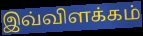
இவ்விளக்கம்